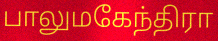
பாலுமகேந்திரா